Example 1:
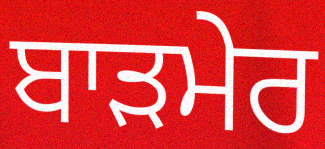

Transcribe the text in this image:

ਬਾੜਮੇਰ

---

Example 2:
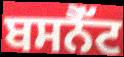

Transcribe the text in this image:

ਬਸਨੈੱਟ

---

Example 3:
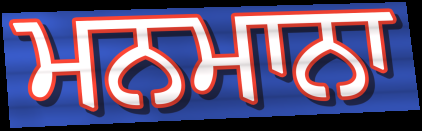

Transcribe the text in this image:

ਮਨਮਾਨਾ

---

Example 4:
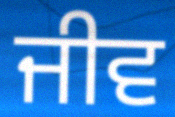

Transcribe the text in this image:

ਜੀਵ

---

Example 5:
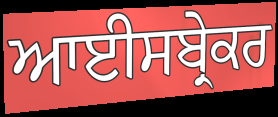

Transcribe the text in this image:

ਆਈਸਬ੍ਰੇਕਰ